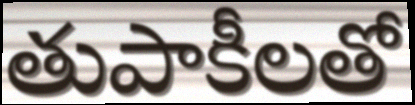
తుపాకీలతో